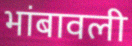
भांबावली